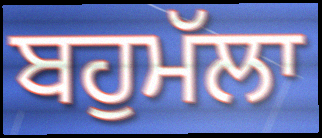
ਬਹੁਮੱਲਾ